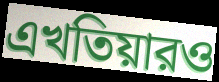
এখতিয়ারও